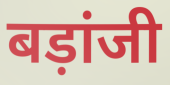
बड़ांजी